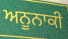
ਅਨੂਨਾਕੀ